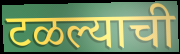
टळल्याची